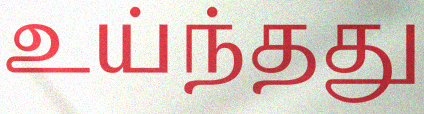
உய்ந்தது